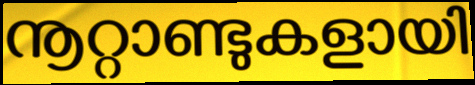
നൂറ്റാണ്ടുകളായി